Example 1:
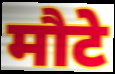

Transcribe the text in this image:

मौटे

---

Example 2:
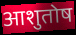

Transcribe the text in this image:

आशुतोष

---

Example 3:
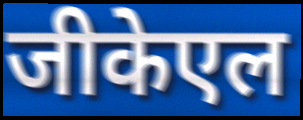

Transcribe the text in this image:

जीकेएल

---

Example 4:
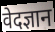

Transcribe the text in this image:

वेदज्ञान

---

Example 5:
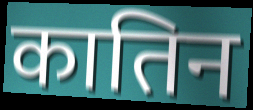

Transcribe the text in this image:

कातिन